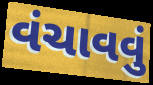
વંચાવવું